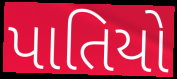
પાતિયો